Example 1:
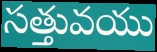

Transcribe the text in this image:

సత్తువయు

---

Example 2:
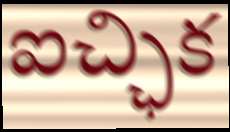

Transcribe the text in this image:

ఐచ్ఛిక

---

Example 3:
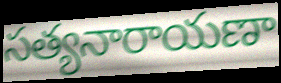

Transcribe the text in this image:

సత్యనారాయణా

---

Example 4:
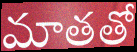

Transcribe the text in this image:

మాతతో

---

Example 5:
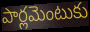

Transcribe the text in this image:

పార్లమెంటుకు